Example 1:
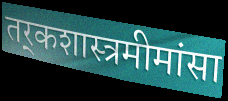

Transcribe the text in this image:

तर्कशास्त्रमीमांसा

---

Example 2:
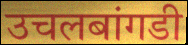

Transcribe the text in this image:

उचलबांगडी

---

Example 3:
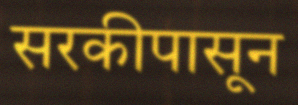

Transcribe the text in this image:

सरकीपासून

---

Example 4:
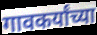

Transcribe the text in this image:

गावकर्यांच्या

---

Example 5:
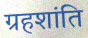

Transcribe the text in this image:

ग्रहशांति